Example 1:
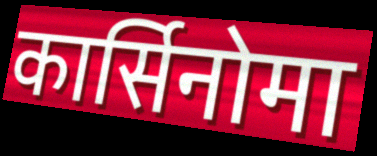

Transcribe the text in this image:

कार्सिनोमा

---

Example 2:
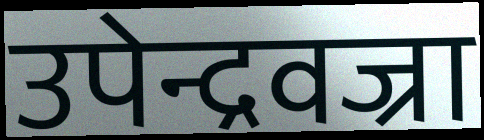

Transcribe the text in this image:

उपेन्द्रवज्रा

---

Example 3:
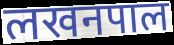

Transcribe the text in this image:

लखनपाल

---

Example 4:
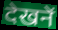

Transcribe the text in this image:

देखनें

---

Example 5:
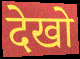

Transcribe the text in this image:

देखो